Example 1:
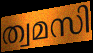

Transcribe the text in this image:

ത്വമസി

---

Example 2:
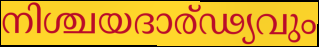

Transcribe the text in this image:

നിശ്ചയദാര്ഢ്യവും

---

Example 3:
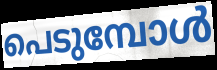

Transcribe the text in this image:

പെടുമ്പോൾ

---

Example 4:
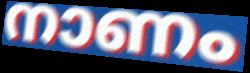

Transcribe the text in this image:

നാണം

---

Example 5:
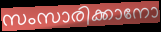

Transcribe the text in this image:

സംസാരിക്കാനോ